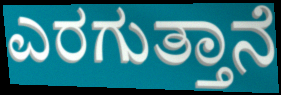
ಎರಗುತ್ತಾನೆ